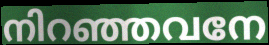
നിറഞ്ഞവനേ